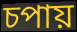
চপায়